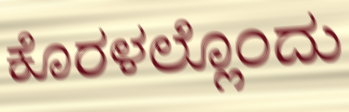
ಕೊರಳಲ್ಲೊಂದು